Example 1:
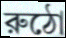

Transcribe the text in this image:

রুঠো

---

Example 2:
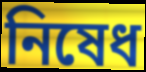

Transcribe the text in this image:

নিষেধ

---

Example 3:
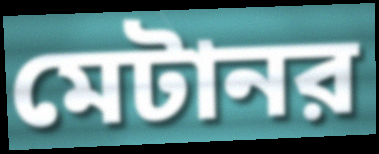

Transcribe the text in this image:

মেটানর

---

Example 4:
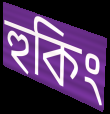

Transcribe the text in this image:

হুকিং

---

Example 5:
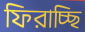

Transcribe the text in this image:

ফিরাচ্ছি